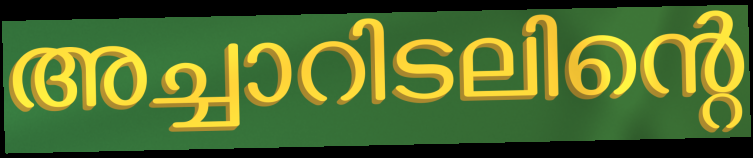
അച്ചാറിടലിന്റെ